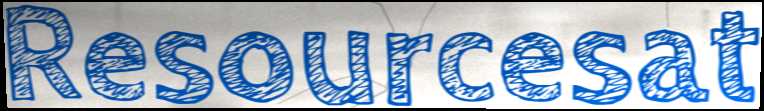
Resourcesat